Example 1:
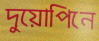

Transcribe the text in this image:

দুয়োপিনে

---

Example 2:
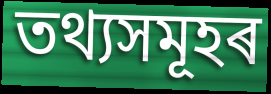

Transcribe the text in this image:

তথ্যসমূহৰ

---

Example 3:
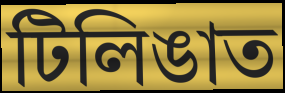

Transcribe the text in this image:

টিলিঙাত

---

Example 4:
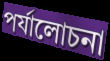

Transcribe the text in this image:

পৰ্যালোচনা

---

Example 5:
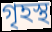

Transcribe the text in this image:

গৃহস্থ